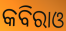
କବିରାଓ